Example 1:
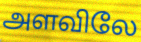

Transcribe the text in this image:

அளவிலே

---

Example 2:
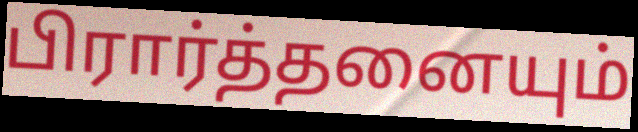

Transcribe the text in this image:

பிரார்த்தனையும்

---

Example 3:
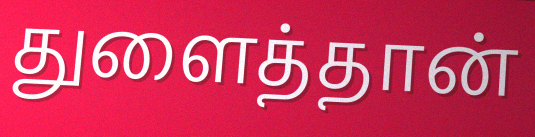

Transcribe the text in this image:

துளைத்தான்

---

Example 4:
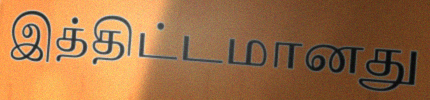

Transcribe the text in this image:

இத்திட்டமானது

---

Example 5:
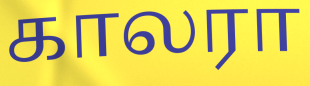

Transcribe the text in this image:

காலரா